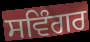
ਸਵਿੰਗਰ